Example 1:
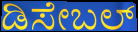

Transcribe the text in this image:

ಡಿಸೇಬಲ್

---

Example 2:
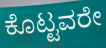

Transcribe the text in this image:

ಕೊಟ್ಟವರೇ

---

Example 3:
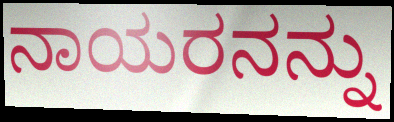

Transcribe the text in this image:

ನಾಯರನನ್ನು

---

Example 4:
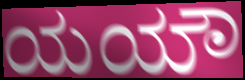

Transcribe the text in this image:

ಯಯೌ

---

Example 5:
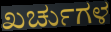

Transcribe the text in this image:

ಖರ್ಚುಗಳ